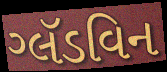
ગ્લૅડવિન